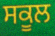
ਸਕੂਲ